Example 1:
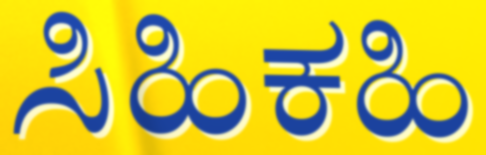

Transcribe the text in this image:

ಸಿಹಿಕಹಿ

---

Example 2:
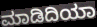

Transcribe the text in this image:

ಮಾಡಿದಿಯಾ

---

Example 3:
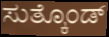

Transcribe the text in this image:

ಸುತ್ಕೊಂಡ್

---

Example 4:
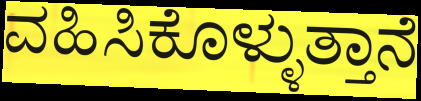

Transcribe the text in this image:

ವಹಿಸಿಕೊಳ್ಳುತ್ತಾನೆ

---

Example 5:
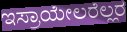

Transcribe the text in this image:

ಇಸ್ರಾಯೇಲರೆಲ್ಲರ